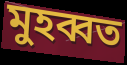
মুহব্বত